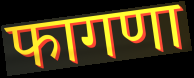
फागणा